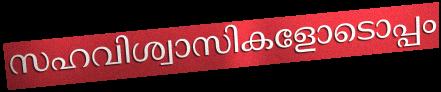
സഹവിശ്വാസികളോടൊപ്പം